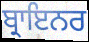
ਬ੍ਰਾਇਨਰ